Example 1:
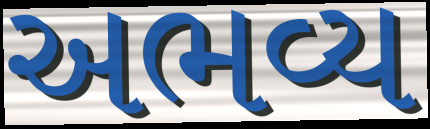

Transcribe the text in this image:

અભવ્ય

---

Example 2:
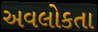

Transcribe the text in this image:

અવલોકતા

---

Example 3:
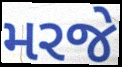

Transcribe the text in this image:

મરજે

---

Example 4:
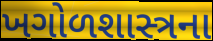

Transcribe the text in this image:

ખગોળશાસ્ત્રના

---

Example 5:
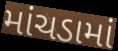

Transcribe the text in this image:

માંચડામાં